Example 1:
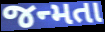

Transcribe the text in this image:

જન્મતા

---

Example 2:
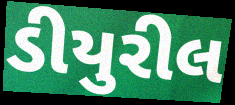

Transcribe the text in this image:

ડીયુરીલ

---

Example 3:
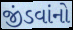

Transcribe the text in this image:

જીંડવાંનો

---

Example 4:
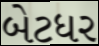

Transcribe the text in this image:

બેટધર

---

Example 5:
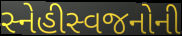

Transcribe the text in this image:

સ્નેહીસ્વજનોની